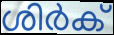
ശിർക്